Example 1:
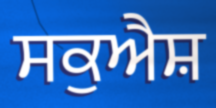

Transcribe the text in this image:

ਸਕੁਐਸ਼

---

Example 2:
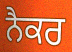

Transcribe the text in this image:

ਨੈਕਰ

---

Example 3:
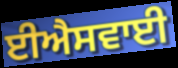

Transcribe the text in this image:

ਈਐਸਵਾਈ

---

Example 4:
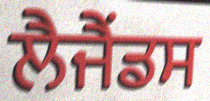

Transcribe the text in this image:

ਲੈਜੈਂਡਸ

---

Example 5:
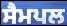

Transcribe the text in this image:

ਸੈਮਪਲ